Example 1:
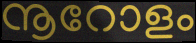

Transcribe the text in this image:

നൂറോളം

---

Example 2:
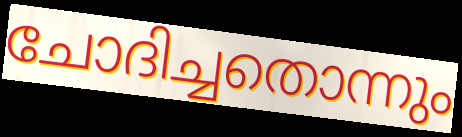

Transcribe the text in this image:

ചോദിച്ചതൊന്നും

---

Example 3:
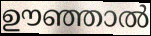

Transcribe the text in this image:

ഊഞ്ഞാൽ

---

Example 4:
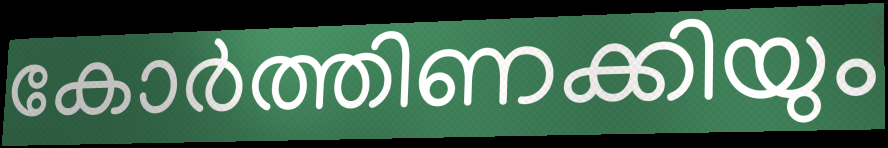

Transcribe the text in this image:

കോർത്തിണക്കിയും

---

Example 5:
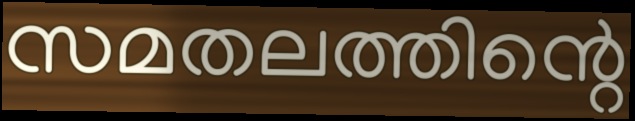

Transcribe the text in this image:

സമതലത്തിന്റെ